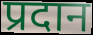
प्रदान